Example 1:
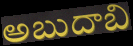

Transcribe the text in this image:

అబుదాబి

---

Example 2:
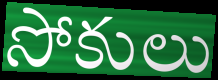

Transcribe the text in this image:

సోకులు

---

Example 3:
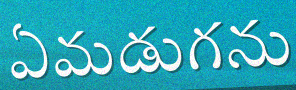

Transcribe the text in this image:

ఏమడుగను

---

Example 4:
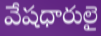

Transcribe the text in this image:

వేషధారులై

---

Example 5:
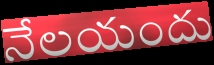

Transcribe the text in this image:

నేలయందు